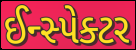
ઈન્સ્પેક્ટર